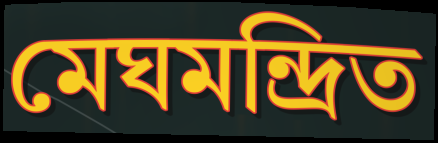
মেঘমন্দ্রিত